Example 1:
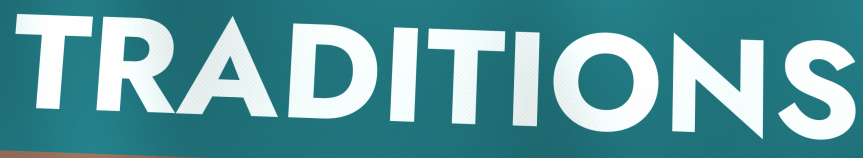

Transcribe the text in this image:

TRADITIONS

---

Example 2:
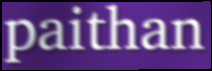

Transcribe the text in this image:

paithan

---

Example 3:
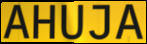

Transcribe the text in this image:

AHUJA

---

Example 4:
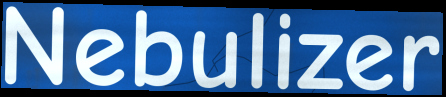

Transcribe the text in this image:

Nebulizer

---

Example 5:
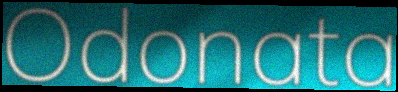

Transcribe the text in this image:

Odonata